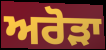
ਅਰੋੜਾ